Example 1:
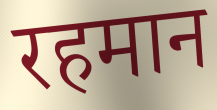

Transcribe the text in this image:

रहमान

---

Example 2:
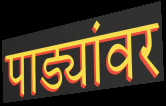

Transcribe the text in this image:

पाड्यांवर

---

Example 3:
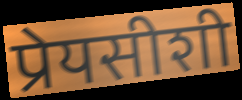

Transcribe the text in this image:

प्रेयसीशी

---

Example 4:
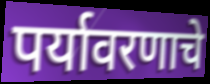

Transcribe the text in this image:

पर्यावरणाचे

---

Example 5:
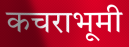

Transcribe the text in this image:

कचराभूमी